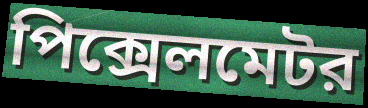
পিক্সেলমেটর